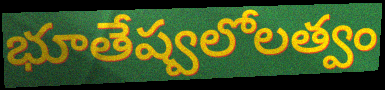
భూతేష్వలోలత్వం